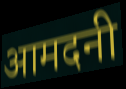
आमदनी